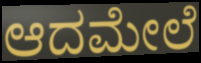
ಆದಮೇಲೆ